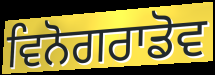
ਵਿਨੋਗਰਾਡੋਵ